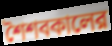
শৈশবকালের